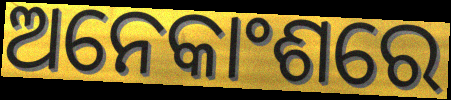
ଅନେକାଂଶରେ